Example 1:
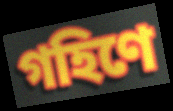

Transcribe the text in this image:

গহিণে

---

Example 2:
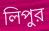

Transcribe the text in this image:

লিপুর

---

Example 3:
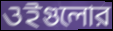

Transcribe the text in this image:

ওইগুলোর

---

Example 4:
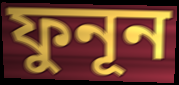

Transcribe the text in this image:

ফুনূন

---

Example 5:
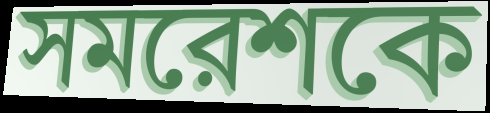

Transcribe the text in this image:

সমরেশকে